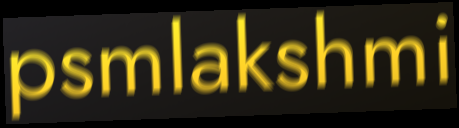
psmlakshmi